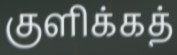
குளிக்கத்